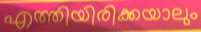
എത്തിയിരിക്കയാലും